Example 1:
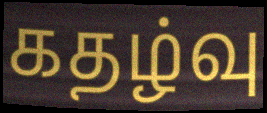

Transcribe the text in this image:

கதழ்வு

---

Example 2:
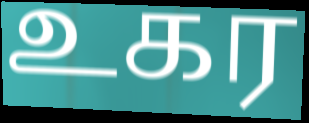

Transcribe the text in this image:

உகர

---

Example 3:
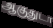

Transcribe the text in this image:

ஆகுதுடா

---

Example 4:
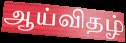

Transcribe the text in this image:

ஆய்விதழ்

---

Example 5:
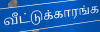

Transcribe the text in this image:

வீட்டுக்காரங்க